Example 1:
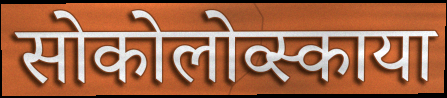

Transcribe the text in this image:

सोकोलोव्स्काया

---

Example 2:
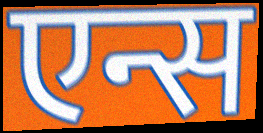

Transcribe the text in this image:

एन्स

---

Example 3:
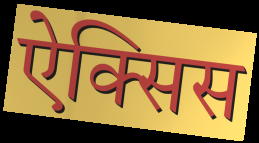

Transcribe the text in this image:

ऐक्सिस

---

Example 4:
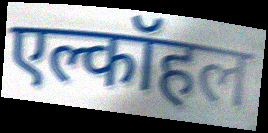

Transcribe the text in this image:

एल्कॉहल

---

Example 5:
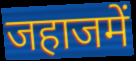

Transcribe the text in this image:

जहाजमें